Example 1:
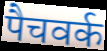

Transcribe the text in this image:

पैचवर्क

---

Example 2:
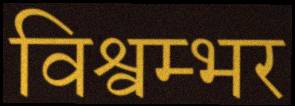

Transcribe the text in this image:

विश्वम्भर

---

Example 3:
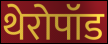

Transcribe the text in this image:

थेरोपॉड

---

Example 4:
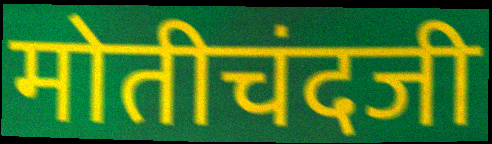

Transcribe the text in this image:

मोतीचंदजी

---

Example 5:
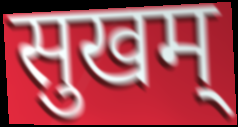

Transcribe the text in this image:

सुखम्